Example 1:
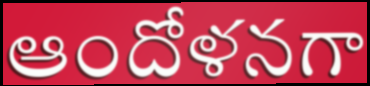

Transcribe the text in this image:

ఆందోళనగా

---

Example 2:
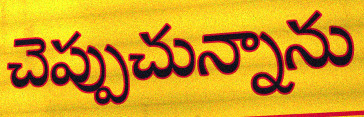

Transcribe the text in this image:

చెప్పుచున్నాను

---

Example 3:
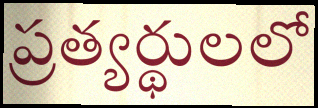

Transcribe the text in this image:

ప్రత్యర్థులలో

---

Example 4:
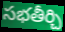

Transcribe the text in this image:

సభతీర్చి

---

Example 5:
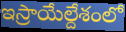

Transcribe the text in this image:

ఇస్రాయేల్దేశంలో